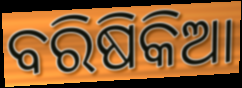
ବରିଷିକିଆ